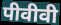
पीवीवी